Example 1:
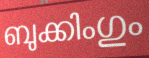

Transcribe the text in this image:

ബുക്കിംഗും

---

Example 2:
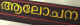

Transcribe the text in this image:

ആലോചന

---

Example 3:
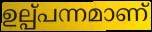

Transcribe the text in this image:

ഉല്പ്പന്നമാണ്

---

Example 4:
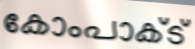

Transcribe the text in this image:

കോംപാക്ട്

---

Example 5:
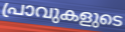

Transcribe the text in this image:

പ്രാവുകളുടെ